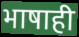
भाषाही